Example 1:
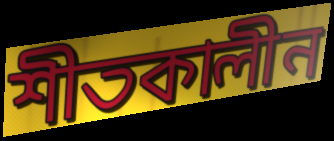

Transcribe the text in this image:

শীতকালীন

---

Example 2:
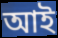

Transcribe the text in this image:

আই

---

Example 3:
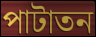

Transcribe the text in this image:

পাটাতন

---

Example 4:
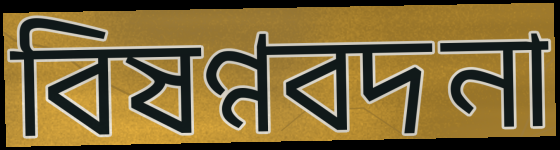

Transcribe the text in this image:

বিষণ্ণবদনা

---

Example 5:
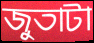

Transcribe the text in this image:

জুতাটা